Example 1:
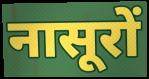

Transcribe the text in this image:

नासूरों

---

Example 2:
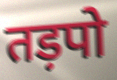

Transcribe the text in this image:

तड़पो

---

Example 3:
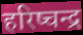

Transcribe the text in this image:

हरिष्चन्द्र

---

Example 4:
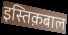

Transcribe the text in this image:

इस्तिक़बाल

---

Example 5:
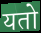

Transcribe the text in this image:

यतो